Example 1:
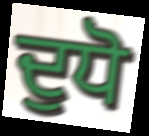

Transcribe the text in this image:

ਦੁਧੋ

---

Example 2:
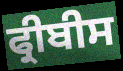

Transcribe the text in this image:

ਫ੍ਰੀਬੀਸ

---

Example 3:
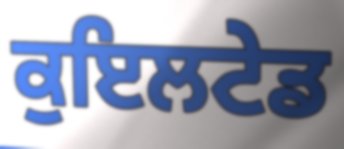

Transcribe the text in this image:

ਕੁਇਲਟੇਡ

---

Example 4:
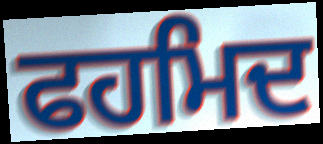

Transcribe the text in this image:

ਫਹਮਿਦ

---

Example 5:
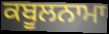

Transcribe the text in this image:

ਕਬੂਲਨਾਮਾ